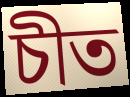
চীত